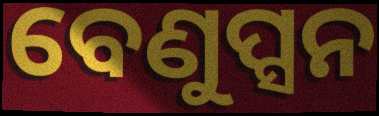
ବେଣୁପ୍ସନ